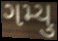
ગમ્યુ